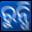
ରୁନ୍ଧି